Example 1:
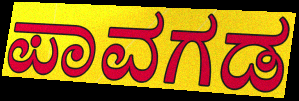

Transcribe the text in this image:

ಪಾವಗಡ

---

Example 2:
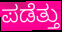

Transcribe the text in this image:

ಪಡೆತ್ತು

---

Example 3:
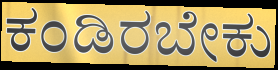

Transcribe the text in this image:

ಕಂಡಿರಬೇಕು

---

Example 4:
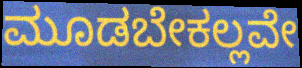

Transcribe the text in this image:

ಮೂಡಬೇಕಲ್ಲವೇ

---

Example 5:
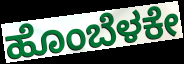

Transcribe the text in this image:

ಹೊಂಬೆಳಕೇ